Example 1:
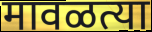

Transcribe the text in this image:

मावळत्या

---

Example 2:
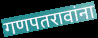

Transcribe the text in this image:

गणपतरावांना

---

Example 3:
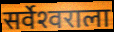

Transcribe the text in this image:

सर्वेश्वराला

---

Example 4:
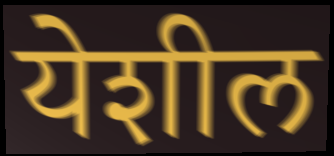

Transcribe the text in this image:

येशील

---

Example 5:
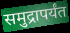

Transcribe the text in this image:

समुद्रापर्यंत